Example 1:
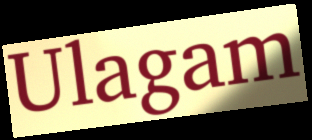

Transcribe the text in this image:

Ulagam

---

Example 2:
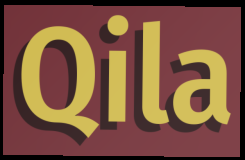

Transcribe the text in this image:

Qila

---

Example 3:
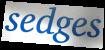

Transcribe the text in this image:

sedges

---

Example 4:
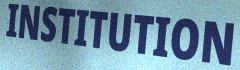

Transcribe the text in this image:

INSTITUTION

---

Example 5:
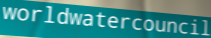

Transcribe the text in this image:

worldwatercouncil